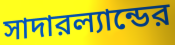
সাদারল্যান্ডের